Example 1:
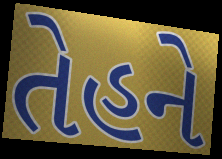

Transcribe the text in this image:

તેહને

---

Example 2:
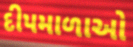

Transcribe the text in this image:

દીપમાળાઓ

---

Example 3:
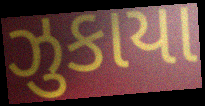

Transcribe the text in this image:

ઝુકાયા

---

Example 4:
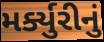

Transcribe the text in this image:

મર્ક્યુરીનું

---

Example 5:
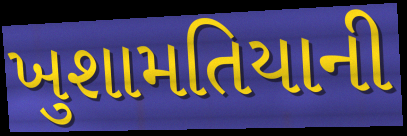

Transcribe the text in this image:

ખુશામતિયાની